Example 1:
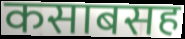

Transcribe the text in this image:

कसाबसह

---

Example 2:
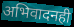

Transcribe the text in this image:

अभिवादनही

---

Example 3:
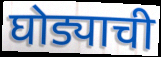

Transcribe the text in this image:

घोड्याची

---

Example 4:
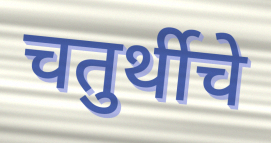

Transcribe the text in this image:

चतुर्थीचे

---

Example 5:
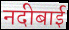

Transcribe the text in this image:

नदीबाई